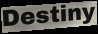
Destiny